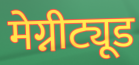
मेग्नीट्यूड